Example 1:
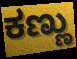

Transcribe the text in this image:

ಕಣ್ಣು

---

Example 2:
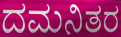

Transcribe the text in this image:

ದಮನಿತರ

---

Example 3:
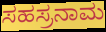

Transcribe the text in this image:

ಸಹಸ್ರನಾಮ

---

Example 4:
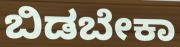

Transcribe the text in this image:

ಬಿಡಬೇಕಾ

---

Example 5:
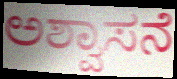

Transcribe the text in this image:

ಅಶ್ವಾಸನೆ